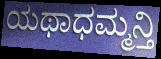
ಯಥಾಧಮ್ಮನ್ತಿ